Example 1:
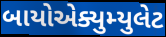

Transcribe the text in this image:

બાયોએક્યુમ્યુલેટ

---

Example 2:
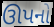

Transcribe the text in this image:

ઊપનો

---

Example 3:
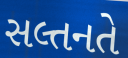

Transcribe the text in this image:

સલ્તનતે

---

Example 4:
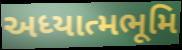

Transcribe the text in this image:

અધ્યાત્મભૂમિ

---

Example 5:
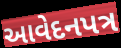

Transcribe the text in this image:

આવેદનપત્ર